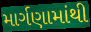
માર્ગણામાંથી